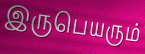
இருபெயரும்